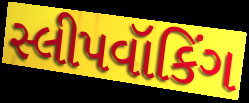
સ્લીપવૉકિંગ